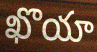
ఖొయా